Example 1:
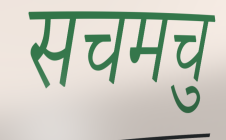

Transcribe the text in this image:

सचमचु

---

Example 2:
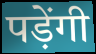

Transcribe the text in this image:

पड़ेंगी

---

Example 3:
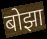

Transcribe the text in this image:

बोझा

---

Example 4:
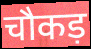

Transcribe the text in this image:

चौकड़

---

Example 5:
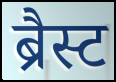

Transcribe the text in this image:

ब्रैस्ट